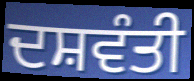
ਦਸ਼ਵੰਤੀ